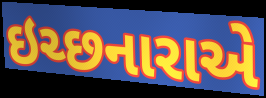
ઇચ્છનારાએ